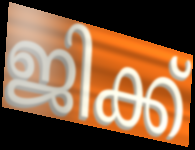
ജിക്ക്